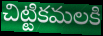
చిట్టికమలకి